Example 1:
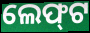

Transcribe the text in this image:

ଲେଫ୍‌ଟ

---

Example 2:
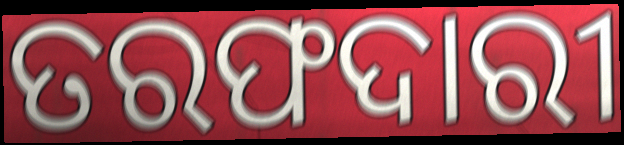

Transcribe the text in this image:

ତରଫଦାରୀ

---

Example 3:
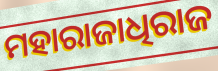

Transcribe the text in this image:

ମହାରାଜାଧିରାଜ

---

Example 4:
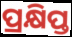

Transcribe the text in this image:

ପ୍ରକ୍ଷିପ୍ତ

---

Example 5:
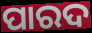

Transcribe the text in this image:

ପାରଦ